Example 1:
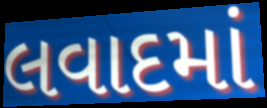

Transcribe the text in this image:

લવાદમાં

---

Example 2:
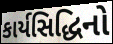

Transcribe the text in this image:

કાર્યસિદ્ધિનો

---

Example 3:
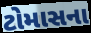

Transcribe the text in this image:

ટોમાસના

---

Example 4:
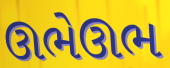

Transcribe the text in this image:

ઊભેઊભ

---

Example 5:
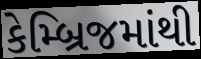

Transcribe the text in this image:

કેમ્બ્રિજમાંથી